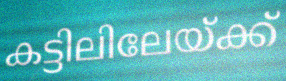
കട്ടിലിലേയ്ക്ക്